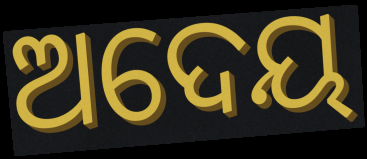
ଅଦେୟ